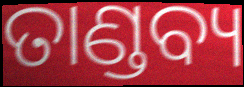
ତାଣ୍ଡବ୍ୟ